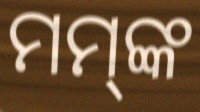
ମମ୍‍ଙ୍କ